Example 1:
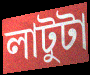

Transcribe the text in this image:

লাটুটা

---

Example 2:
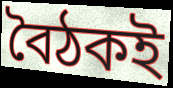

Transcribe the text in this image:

বৈঠকই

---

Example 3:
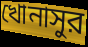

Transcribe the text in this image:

খোনাসুর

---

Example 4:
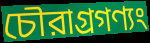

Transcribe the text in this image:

চৌরাগ্রগণ্যং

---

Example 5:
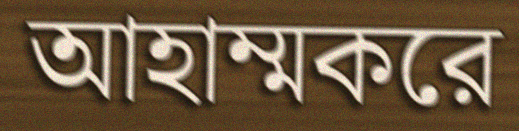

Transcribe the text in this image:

আহাম্মকরে